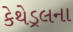
કેથેડ્રલના